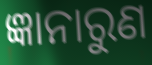
ଜ୍ଞାନାରୁଣ